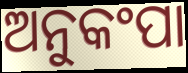
ଅନୁକଂପା